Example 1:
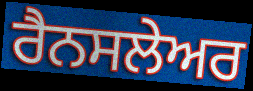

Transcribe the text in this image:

ਰੈਨਸਲੇਅਰ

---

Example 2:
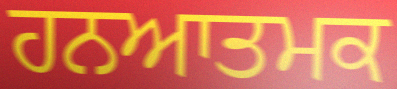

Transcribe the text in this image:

ਹਨਆਤਮਕ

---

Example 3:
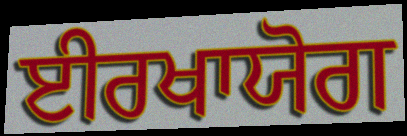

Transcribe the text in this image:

ਈਰਖਾਯੋਗ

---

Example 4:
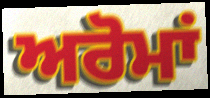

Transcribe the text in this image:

ਅਰੋਮਾਂ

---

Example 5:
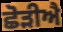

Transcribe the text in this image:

ਛੋੜੀਐ